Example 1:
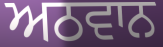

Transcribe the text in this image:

ਅਠਵਾਨ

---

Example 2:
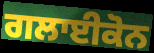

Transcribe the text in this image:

ਗਲਾਈਕੋਨ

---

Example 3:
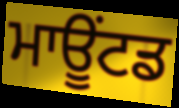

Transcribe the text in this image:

ਮਾਊਂਟਡ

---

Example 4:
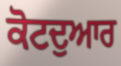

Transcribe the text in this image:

ਕੋਟਦੁਆਰ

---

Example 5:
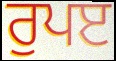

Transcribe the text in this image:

ਰੁਪੲ